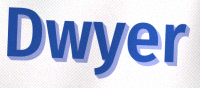
Dwyer